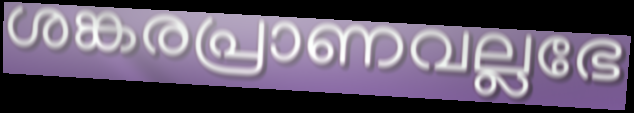
ശങ്കരപ്രാണവല്ലഭേ